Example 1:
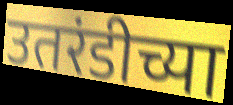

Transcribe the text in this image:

उतरंडीच्या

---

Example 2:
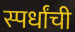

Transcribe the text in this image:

स्पर्धांची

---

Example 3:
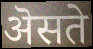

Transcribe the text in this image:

ऄसते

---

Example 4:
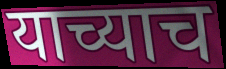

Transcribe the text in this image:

याच्याच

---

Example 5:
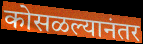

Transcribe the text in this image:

कोसळल्यानंतर